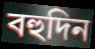
বহুদিন